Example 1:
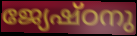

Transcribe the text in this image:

ജ്യേഷ്ഠനു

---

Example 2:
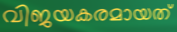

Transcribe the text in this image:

വിജയകരമായത്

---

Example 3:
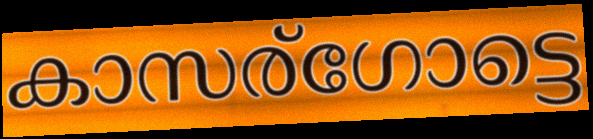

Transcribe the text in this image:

കാസര്ഗോട്ടെ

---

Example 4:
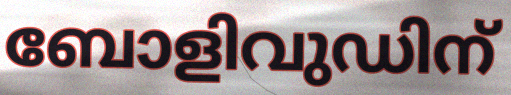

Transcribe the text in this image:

ബോളിവുഡിന്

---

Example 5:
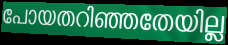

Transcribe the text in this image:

പോയതറിഞ്ഞതേയില്ല